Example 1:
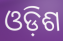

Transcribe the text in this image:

ଓଡ଼ିଶ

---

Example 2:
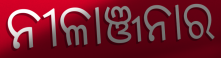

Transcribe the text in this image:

ନୀଳାଞ୍ଜନାର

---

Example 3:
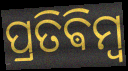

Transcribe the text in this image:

ପ୍ରତିଵିମ୍ବ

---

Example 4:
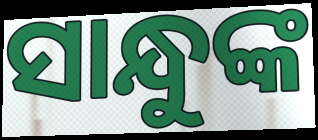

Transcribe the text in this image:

ସାନ୍ଧୁଙ୍କ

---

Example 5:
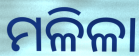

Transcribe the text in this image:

ମଳିଳା